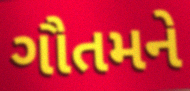
ગૌતમને